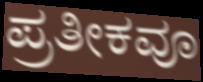
ಪ್ರತೀಕವೂ